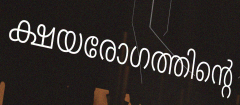
ക്ഷയരോഗത്തിന്റെ